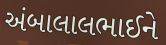
અંબાલાલભાઈને